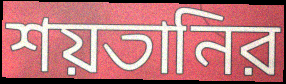
শয়তানির